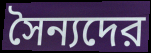
সৈন্যদের